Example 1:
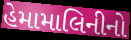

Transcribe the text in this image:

હેમામાલિનીનો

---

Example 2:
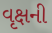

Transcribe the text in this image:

વૃક્ષની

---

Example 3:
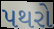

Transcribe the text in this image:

પથરો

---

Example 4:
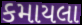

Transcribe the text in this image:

કમાયલા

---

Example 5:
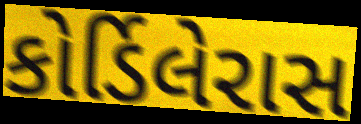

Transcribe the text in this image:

કોર્ડિલેરાસ